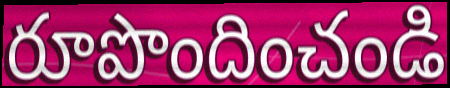
రూపొందించండి